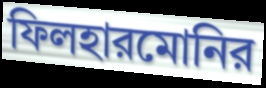
ফিলহারমোনির